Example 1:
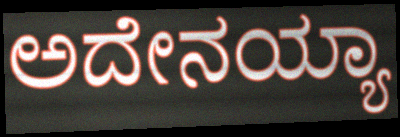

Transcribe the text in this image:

ಅದೇನಯ್ಯಾ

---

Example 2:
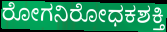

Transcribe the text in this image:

ರೋಗನಿರೋಧಕಶಕ್ತಿ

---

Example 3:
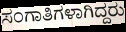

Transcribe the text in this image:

ಸಂಗಾತಿಗಳಾಗಿದ್ದರು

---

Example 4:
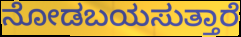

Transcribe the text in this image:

ನೋಡಬಯಸುತ್ತಾರೆ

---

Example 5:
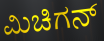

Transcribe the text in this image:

ಮಿಚಿಗನ್